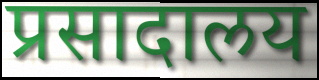
प्रसादालय